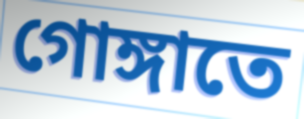
গোঙ্গাতে